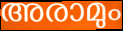
അരാമും